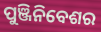
ପୁଞ୍ଜିନିବେଶର